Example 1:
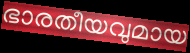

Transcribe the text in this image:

ഭാരതീയവുമായ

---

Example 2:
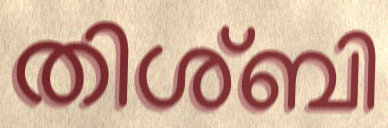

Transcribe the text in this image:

തിശ്ബി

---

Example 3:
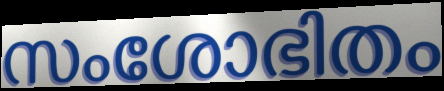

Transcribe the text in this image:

സംശോഭിതം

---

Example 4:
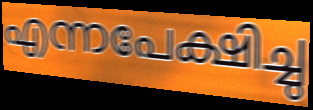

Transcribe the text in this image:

എന്നപേക്ഷിച്ചു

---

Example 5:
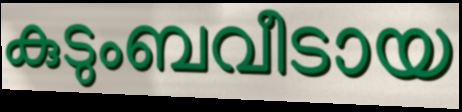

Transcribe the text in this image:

കുടുംബവീടായ